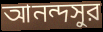
আনন্দসুর